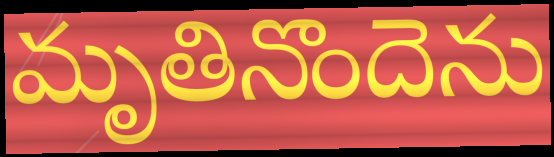
మృతినొందెను